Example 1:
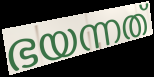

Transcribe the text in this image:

ഭയന്നത്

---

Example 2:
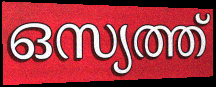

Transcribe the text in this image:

ഒസ്യത്ത്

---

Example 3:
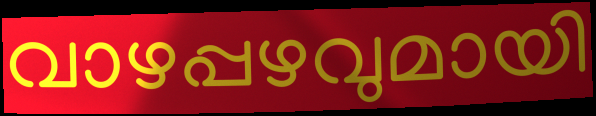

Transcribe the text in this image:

വാഴപ്പഴവുമായി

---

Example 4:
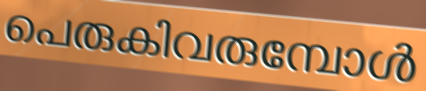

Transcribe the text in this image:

പെരുകിവരുമ്പോൾ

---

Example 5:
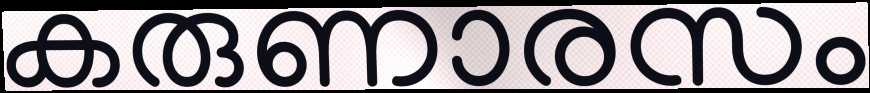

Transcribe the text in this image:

കരുണാരസം